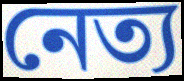
নেত্য